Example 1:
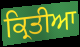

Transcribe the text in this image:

ਕ੍ਰਿਤੀਆ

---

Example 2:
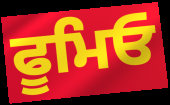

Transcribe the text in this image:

ਫੂਮਿਓ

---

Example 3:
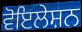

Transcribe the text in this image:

ਵੋਇਲੇਸ਼ਨ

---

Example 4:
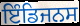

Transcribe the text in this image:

ਇੰਡਿਜਨਸ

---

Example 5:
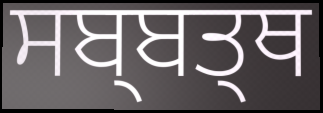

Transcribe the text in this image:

ਸਬ੍ਬਤ੍ਥ